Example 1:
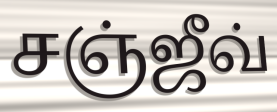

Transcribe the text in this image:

சஞ்ஜீவ்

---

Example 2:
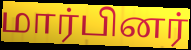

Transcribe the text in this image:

மார்பினர்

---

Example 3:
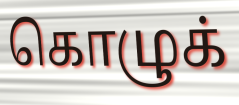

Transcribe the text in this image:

கொழுக்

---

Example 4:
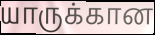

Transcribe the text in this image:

யாருக்கான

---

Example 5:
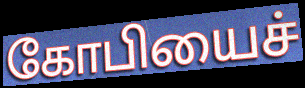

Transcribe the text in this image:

கோபியைச்